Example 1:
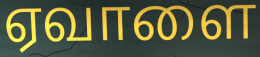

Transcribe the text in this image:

ஏவாளை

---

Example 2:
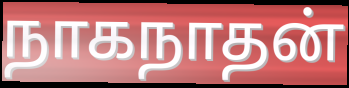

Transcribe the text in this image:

நாகநாதன்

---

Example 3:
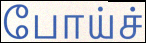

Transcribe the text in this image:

போய்ச்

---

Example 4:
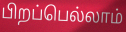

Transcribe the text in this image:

பிறப்பெல்லாம்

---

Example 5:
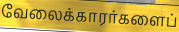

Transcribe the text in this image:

வேலைக்காரர்களைப்